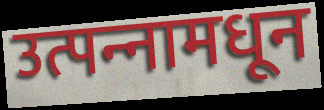
उत्पन्नामधून